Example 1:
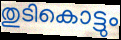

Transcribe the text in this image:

തുടികൊട്ടും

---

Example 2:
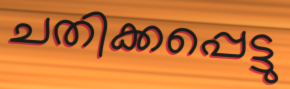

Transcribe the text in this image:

ചതിക്കപ്പെട്ടു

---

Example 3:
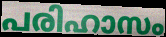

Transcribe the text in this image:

പരിഹാസം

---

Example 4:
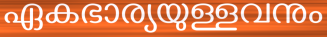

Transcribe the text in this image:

ഏകഭാര്യയുള്ളവനും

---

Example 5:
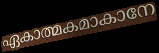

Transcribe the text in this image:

ഏകാത്മകമാകാനേ